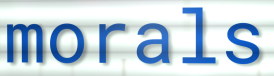
morals